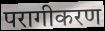
परागीकरण